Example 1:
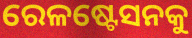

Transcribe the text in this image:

ରେଳଷ୍ଟେସନକୁ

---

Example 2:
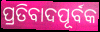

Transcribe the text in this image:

ପ୍ରତିବାଦପୂର୍ବକ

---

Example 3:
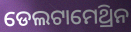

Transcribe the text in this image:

ଡେଲଟାମେଥ୍ରିନ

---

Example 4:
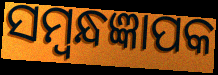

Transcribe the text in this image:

ସମ୍ବନ୍ଧଜ୍ଞାପକ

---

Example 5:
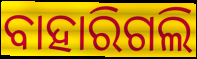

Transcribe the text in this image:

ବାହାରିଗଲି